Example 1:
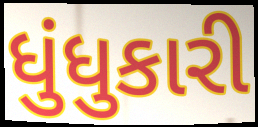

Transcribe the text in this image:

ધુંધુકારી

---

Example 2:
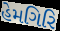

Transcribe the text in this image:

હેમગિરિ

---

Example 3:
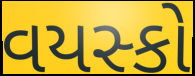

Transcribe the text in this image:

વયસ્કો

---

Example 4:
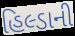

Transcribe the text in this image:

હિલ્ડાની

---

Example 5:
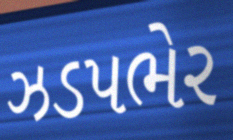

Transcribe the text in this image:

ઝડપભેર